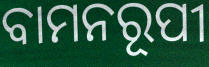
ବାମନରୂପୀ